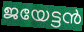
ജയേട്ടൻ